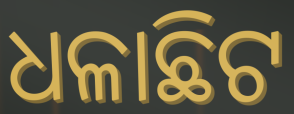
ଧଳାଛିଟ